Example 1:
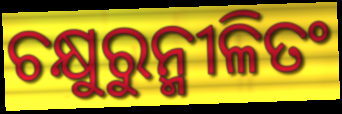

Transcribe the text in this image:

ଚକ୍ଷୁରୁନ୍ମୀଳିତଂ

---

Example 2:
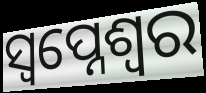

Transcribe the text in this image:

ସ୍ଵପ୍ନେଶ୍ଵର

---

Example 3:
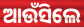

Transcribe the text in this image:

ଆଉଁସିଲେ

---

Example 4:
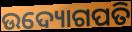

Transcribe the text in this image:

ଉଦ୍ୟୋଗପତି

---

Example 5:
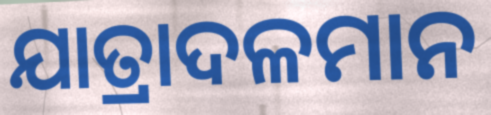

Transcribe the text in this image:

ଯାତ୍ରାଦଳମାନ